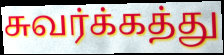
சுவர்க்கத்து